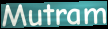
Mutram